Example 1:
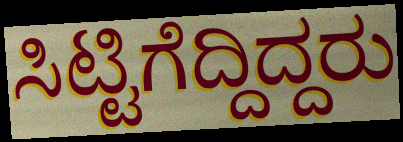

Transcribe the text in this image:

ಸಿಟ್ಟಿಗೆದ್ದಿದ್ದರು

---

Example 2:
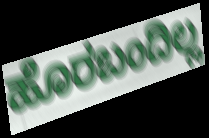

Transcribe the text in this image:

ಹೊರಬಂದಿಲ್ಲ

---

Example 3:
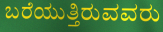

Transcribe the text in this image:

ಬರೆಯುತ್ತಿರುವವರು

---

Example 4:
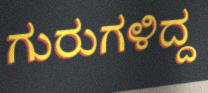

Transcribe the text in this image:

ಗುರುಗಳಿದ್ದ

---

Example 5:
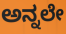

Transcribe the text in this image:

ಅನ್ನಲೇ